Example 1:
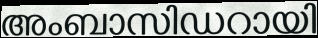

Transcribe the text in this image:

അംബാസിഡറായി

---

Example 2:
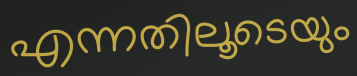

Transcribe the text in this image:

എന്നതിലൂടെയും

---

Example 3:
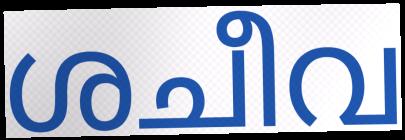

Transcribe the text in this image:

ശചീവ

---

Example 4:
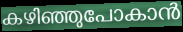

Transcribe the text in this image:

കഴിഞ്ഞുപോകാൻ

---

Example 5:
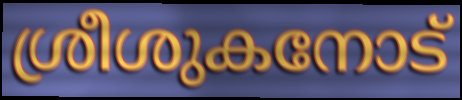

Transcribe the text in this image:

ശ്രീശുകനോട്